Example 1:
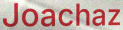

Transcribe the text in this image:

Joachaz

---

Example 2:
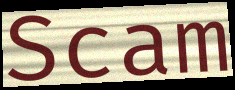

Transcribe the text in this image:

Scam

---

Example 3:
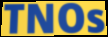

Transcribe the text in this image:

TNOs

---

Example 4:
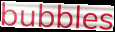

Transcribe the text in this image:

bubbles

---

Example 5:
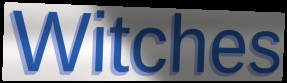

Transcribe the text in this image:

Witches